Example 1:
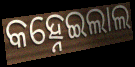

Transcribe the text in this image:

କହ୍ନେଇଲାଲ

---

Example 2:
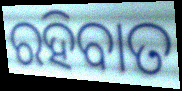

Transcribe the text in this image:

ରହିବାତ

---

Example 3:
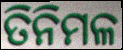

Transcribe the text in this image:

ତିନିମଳ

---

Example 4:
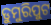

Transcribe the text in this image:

ଡୁମୁରିପୁଟ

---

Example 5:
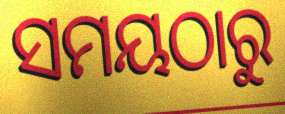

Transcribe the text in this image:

ସମୟଠାରୁ